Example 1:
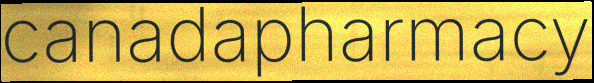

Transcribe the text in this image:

canadapharmacy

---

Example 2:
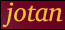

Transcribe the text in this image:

jotan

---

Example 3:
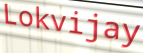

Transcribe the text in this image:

Lokvijay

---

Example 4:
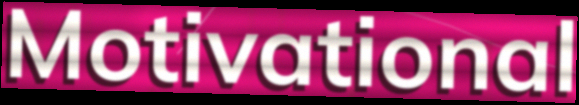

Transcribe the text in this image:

Motivational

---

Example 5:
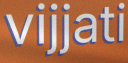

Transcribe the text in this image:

vijjati